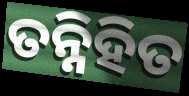
ତନ୍ନିହିତ